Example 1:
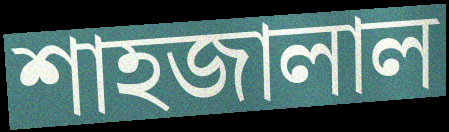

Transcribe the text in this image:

শাহজালাল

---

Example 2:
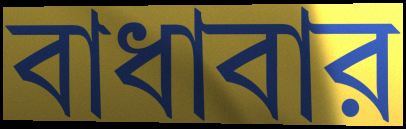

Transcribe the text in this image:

বাধাবার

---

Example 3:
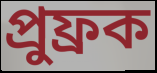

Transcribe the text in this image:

প্রুফ্রক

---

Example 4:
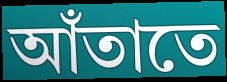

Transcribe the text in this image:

আঁতাতে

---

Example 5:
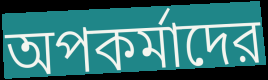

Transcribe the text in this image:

অপকর্মাদের